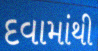
દવામાંથી